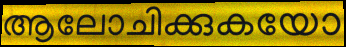
ആലോചിക്കുകയോ